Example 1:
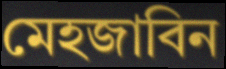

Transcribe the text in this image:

মেহজাবিন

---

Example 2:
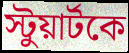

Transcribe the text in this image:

স্টুয়ার্টকে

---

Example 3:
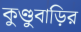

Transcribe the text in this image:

কুণ্ডুবাড়ির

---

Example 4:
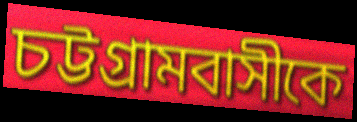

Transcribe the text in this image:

চট্টগ্রামবাসীকে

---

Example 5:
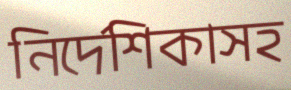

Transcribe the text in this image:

নির্দেশিকাসহ